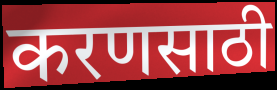
करणसाठी